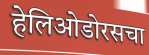
हेलिओडोरसचा